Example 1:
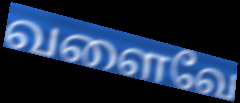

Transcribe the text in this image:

வளைவே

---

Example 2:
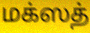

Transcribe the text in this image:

மக்ஸத்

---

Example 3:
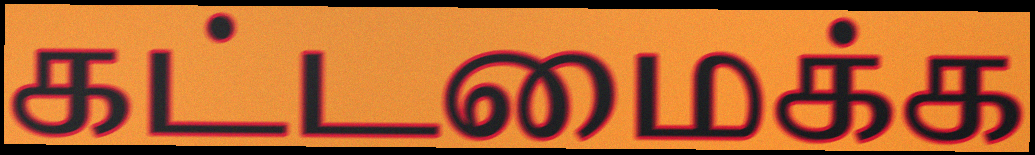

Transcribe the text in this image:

கட்டமைக்க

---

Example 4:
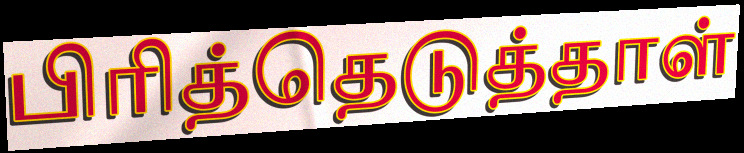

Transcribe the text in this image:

பிரித்தெடுத்தாள்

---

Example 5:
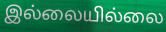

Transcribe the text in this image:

இல்லையில்லை